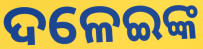
ଦଳେଇଙ୍କ